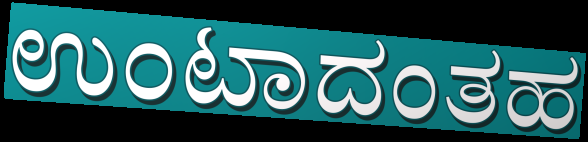
ಉಂಟಾದಂತಹ